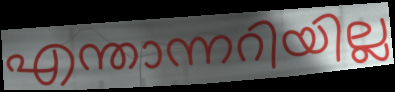
എന്താന്നറിയില്ല